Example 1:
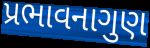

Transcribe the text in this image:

પ્રભાવનાગુણ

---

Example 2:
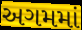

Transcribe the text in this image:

અગમમાં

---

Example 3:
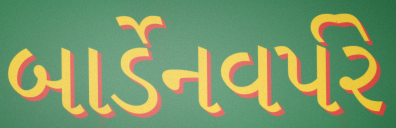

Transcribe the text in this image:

બાર્ડેનવર્પરે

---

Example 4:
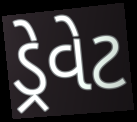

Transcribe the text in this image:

ડ્રેવેટ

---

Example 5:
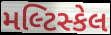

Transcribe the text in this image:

મલ્ટિસ્કેલ